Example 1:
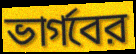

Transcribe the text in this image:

ভার্গবের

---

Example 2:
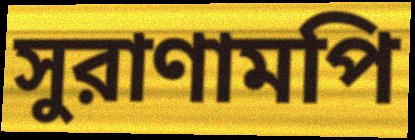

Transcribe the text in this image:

সুরাণামপি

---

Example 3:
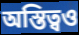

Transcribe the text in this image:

অস্তিত্বও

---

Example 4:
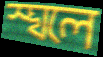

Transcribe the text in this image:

স্খলে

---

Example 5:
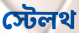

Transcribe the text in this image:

স্টেলথ